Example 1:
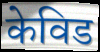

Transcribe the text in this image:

केविड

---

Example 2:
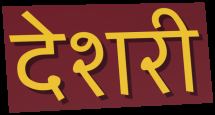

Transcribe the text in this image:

देशरी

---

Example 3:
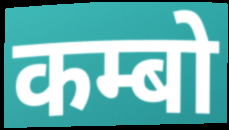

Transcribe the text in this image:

कम्बो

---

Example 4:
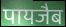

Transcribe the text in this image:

पायजैब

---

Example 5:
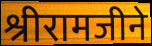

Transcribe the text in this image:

श्रीरामजीने